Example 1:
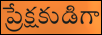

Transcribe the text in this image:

ప్రేక్షకుడిగా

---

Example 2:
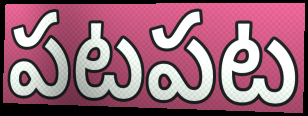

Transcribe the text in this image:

పటపట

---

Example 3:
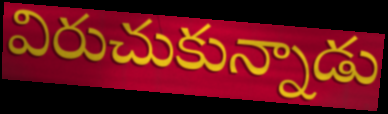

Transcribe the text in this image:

విరుచుకున్నాడు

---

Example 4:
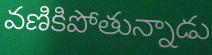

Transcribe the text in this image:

వణికిపోతున్నాడు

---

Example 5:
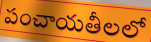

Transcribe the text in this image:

పంచాయతీలలో